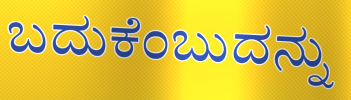
ಬದುಕೆಂಬುದನ್ನು